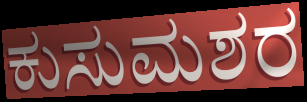
ಕುಸುಮಶರ